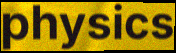
physics